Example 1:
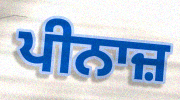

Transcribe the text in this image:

ਪੀਨਾਜ਼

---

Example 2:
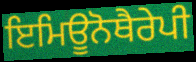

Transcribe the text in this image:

ਇਮਿਊਨੋਥੈਰੇਪੀ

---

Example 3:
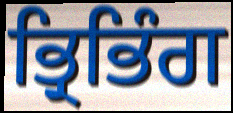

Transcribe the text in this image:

ਭ੍ਰਿਭਿੰਗ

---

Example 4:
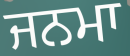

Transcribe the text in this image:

ਜਨਮਾ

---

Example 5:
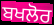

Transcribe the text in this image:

ਬਖਲੋਰ